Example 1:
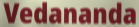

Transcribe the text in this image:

Vedananda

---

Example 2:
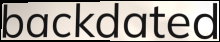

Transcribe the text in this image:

backdated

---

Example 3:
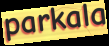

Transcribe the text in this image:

parkala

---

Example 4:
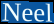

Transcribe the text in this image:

Neel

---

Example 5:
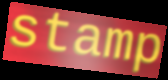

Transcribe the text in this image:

stamp